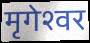
मृगेश्वर